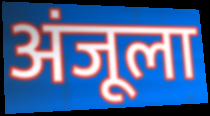
अंजूला